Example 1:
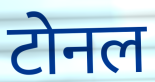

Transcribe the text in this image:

टोनल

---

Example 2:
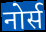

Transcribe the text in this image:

नोर्स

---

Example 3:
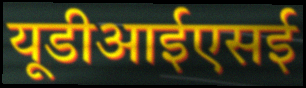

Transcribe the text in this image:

यूडीआईएसई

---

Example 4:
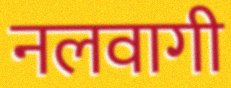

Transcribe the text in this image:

नलवागी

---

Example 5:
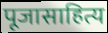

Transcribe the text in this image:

पूजासाहित्य